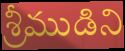
శ్రీముడిని